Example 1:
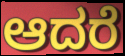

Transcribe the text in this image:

ಆದರೆ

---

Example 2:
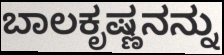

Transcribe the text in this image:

ಬಾಲಕೃಷ್ಣನನ್ನು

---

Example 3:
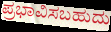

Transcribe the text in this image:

ಪ್ರಭಾವಿಸಬಹುದು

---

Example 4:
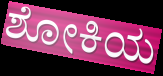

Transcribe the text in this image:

ಶೋಕಿಯ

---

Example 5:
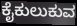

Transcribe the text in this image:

ಕೈಕುಲುಕುವ